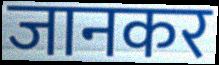
जानकर